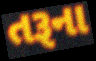
તરૂના